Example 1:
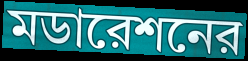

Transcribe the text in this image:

মডারেশনের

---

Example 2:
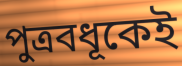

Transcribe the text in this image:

পুত্রবধূকেই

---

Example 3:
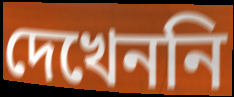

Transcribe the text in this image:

দেখেননি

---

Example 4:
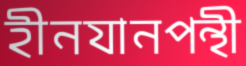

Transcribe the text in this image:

হীনযানপন্থী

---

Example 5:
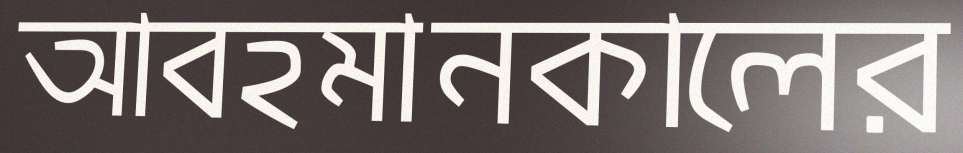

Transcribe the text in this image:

আবহমানকালের